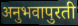
अनुभवापुरती